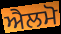
ਐਲਮੋ